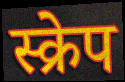
स्क्रेप